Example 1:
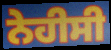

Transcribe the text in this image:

ਨੇਹੀਸੀ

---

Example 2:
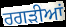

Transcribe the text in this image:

ਰਗੜੀਆਂ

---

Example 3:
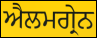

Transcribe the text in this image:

ਐਲਮਗ੍ਰੇਨ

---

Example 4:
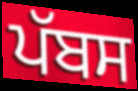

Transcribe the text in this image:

ਪੱਬਸ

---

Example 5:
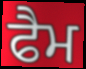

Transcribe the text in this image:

ਫੈਮ